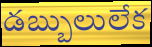
డబ్బులులేక